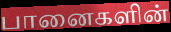
பானைகளின்